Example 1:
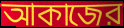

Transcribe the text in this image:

আকাজের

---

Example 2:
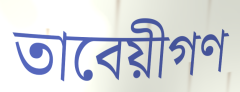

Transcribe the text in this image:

তাবেয়ীগণ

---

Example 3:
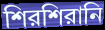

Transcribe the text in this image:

শিরশিরানি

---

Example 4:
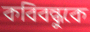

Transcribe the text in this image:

কবিবন্ধুকে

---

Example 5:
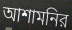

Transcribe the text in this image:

আশামনির